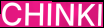
CHINKI